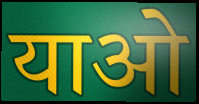
याओ